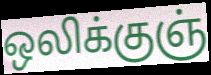
ஒலிக்குஞ்